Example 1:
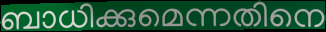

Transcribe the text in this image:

ബാധിക്കുമെന്നതിനെ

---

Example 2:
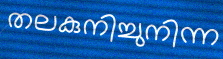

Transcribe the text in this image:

തലകുനിച്ചുനിന്ന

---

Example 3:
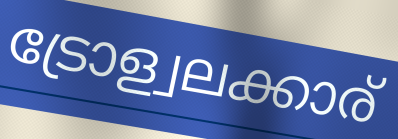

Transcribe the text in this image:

ട്രോള്വലക്കാര്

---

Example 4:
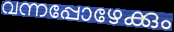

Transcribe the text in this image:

വന്നപ്പോഴേക്കും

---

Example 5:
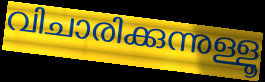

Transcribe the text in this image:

വിചാരിക്കുന്നുള്ളൂ